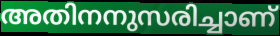
അതിനനുസരിച്ചാണ്